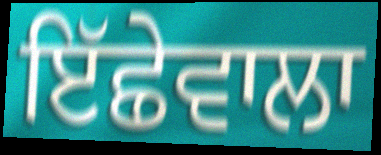
ਇੱਛੇਵਾਲਾ